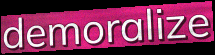
demoralize